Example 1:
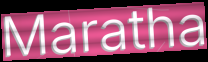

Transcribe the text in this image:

Maratha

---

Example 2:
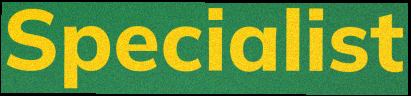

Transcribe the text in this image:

Specialist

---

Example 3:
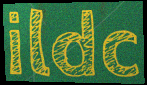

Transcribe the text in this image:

ildc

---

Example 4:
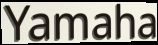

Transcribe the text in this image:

Yamaha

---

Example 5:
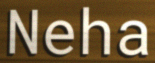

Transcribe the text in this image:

Neha